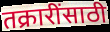
तक्रारींसाठी